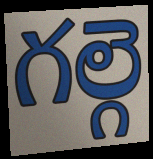
గల్గె